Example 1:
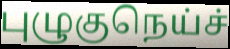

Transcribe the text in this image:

புழுகுநெய்ச்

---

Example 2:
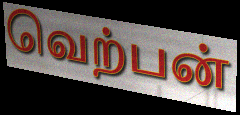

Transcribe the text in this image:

வெற்பன்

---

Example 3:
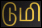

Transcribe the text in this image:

டுமி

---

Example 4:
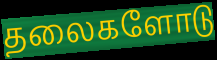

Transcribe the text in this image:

தலைகளோடு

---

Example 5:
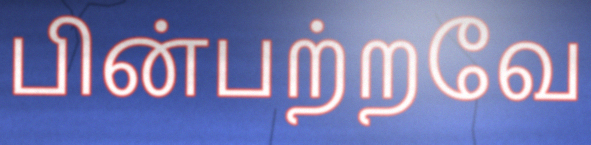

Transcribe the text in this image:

பின்பற்றவே